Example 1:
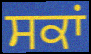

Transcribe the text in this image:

ਸਕਾਂ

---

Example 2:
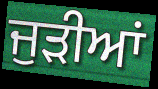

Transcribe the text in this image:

ਜੁੜੀਆਂ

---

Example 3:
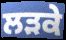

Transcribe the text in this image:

ਲੜਕੇ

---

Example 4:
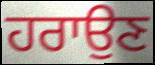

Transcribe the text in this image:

ਹਰਾਉਣ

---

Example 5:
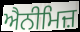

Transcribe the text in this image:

ਐਨੀਮਿਜ਼